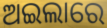
ଅଇଲାରେ